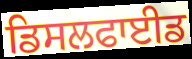
ਡਿਸਲਫਾਈਡ